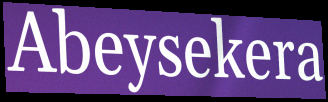
Abeysekera